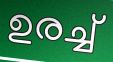
ഉരച്ച്